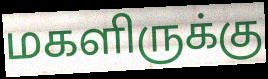
மகளிருக்கு